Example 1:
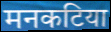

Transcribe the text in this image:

मनकटिया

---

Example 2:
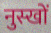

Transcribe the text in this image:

नुस्‍खों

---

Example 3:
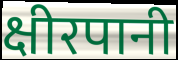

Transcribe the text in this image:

क्षीरपानी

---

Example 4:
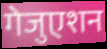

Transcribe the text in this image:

गेजुएशन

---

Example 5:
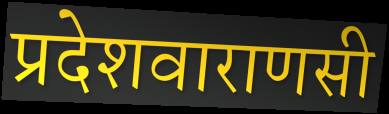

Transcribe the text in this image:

प्रदेशवाराणसी